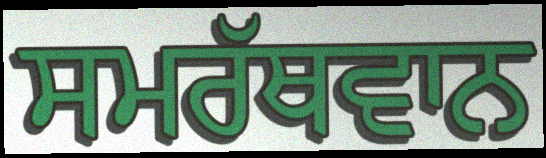
ਸਮਰੱਥਵਾਨ